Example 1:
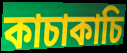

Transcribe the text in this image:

কাচাকাচি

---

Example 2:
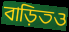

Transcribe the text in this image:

বাড়িতও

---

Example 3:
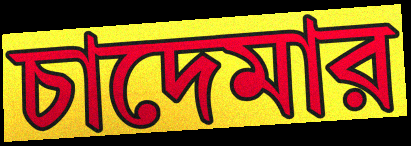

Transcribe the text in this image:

চাদেমার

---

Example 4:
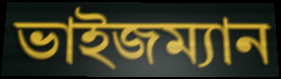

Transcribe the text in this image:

ভাইজম্যান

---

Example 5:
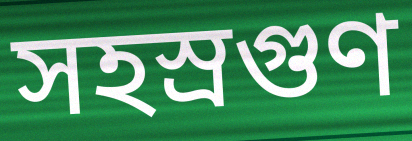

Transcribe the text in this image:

সহস্রগুণ